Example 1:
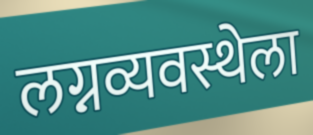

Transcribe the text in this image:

लग्नव्यवस्थेला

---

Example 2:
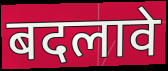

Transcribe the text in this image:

बदलावे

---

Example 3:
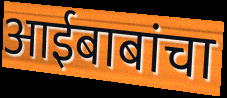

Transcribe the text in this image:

आईबाबांचा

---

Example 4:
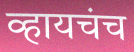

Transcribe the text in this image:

व्हायचंच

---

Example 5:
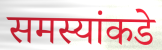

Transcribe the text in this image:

समस्यांकडे